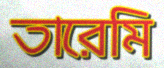
তারেমি